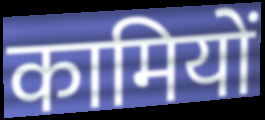
कामियों